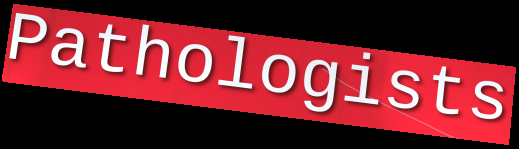
Pathologists